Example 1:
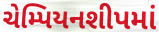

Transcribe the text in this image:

ચેમ્પિયનશીપમાં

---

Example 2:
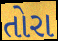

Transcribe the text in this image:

તોરા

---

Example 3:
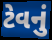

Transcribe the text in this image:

ટેવનું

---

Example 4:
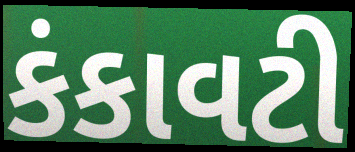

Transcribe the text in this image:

કંકાવટી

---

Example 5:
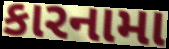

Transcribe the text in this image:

કારનામા